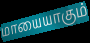
மாயையாகும்